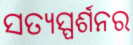
ସତ୍ୟସ୍ପର୍ଶନର